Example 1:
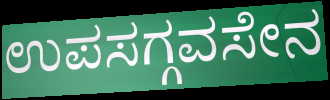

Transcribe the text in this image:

ಉಪಸಗ್ಗವಸೇನ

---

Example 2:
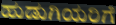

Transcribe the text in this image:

ಹುಡುಗಿಯರಿಗೆ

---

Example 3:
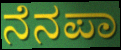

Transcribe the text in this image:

ನೆನಪಾ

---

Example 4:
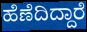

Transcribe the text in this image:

ಹೆಣೆದಿದ್ದಾರೆ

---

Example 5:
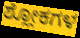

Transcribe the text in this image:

ಶ್ಲೋಕಗಳ